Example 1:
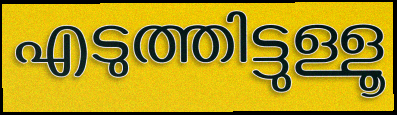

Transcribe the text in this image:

എടുത്തിട്ടുള്ളൂ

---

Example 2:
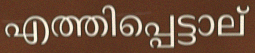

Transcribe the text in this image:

എത്തിപ്പെട്ടാല്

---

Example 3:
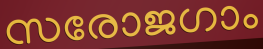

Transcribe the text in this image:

സരോജഗാം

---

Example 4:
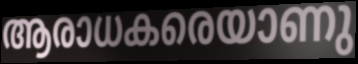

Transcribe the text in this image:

ആരാധകരെയാണു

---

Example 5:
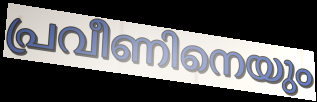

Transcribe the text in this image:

പ്രവീണിനെയും